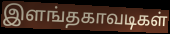
இளங்தகாவடிகள்